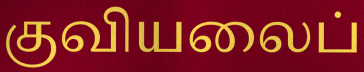
குவியலைப்